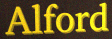
Alford